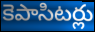
కెపాసిటర్లు